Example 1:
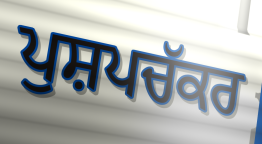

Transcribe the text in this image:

ਪੁਸ਼ਪਚੱਕਰ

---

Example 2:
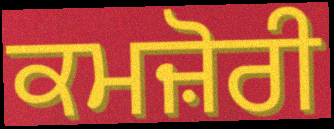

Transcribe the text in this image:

ਕਮਜ਼ੋਰੀ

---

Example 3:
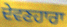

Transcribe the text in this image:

ਦੇਵਣਹਾਰਾ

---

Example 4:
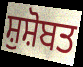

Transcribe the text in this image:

ਸ਼ੁਸ਼ੋਬਤ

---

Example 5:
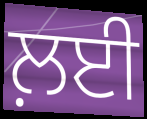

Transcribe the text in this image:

ਲ਼ਈ